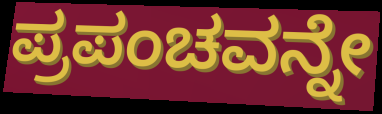
ಪ್ರಪಂಚವನ್ನೇ